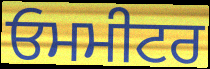
ਓਮਮੀਟਰ